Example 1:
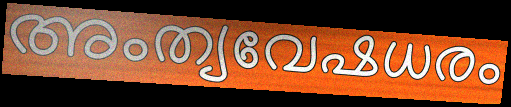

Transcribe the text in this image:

അംത്യവേഷധരം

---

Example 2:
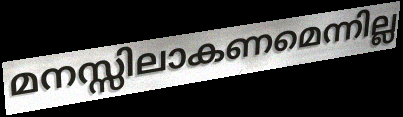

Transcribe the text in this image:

മനസ്സിലാകണമെന്നില്ല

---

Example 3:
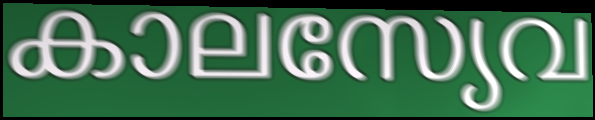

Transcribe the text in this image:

കാലസ്യേവ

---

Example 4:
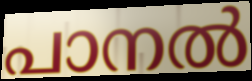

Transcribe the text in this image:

പാനൽ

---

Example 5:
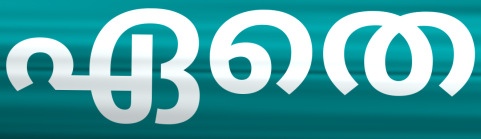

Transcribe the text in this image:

ഏതെ